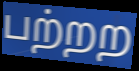
பற்றற